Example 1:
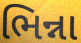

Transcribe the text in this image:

ભિન્ના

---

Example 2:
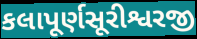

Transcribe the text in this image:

કલાપૂર્ણસૂરીશ્વરજી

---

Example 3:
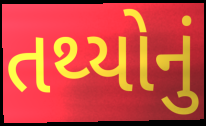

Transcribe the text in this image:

તથ્યોનું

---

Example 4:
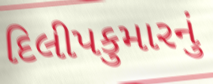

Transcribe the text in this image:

દિલીપકુમારનું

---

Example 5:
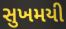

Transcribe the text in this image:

સુખમયી